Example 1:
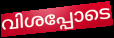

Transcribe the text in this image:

വിശപ്പോടെ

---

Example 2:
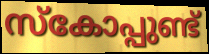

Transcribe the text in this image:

സ്കോപ്പുണ്ട്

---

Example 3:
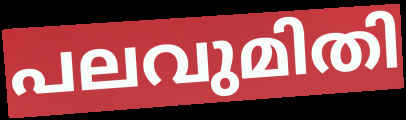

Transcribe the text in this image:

പലവുമിതി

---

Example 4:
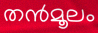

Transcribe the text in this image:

തൻമൂലം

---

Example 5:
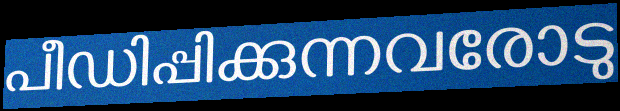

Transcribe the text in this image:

പീഡിപ്പിക്കുന്നവരോടു